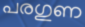
പരഗുണ